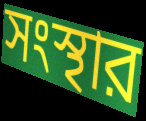
সংস্থার